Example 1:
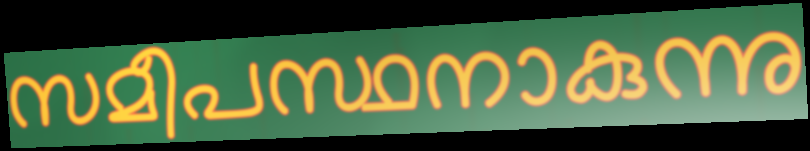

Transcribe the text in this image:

സമീപസ്ഥനാകുന്നു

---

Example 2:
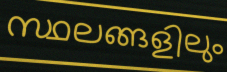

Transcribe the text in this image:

സ്ഥലങ്ങളിലും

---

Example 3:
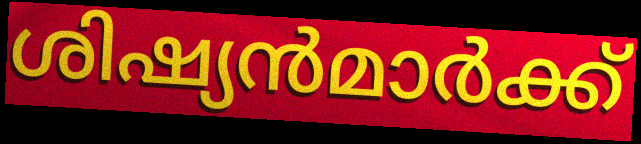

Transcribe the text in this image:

ശിഷ്യൻമാർക്ക്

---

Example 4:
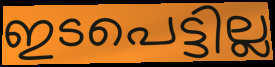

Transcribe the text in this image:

ഇടപെട്ടില്ല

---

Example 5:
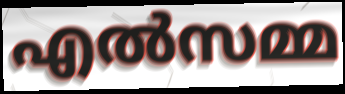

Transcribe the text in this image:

എൽസമ്മ